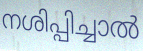
നശിപ്പിച്ചാൽ